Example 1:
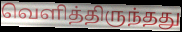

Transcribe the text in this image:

வெளித்திருந்தது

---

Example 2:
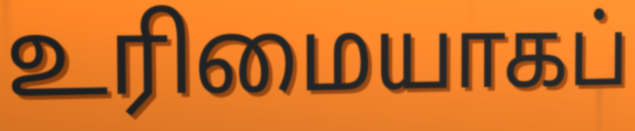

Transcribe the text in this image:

உரிமையாகப்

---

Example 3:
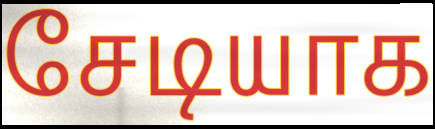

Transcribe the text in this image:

சேடியாக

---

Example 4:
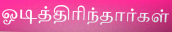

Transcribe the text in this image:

ஓடித்திரிந்தார்கள்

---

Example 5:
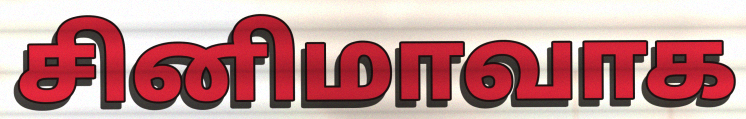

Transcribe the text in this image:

சினிமாவாக